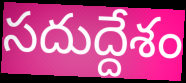
సదుద్దేశం